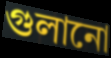
গুলানো